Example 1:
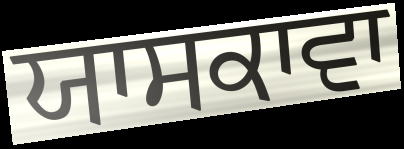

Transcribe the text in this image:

ਯਾਸਕਾਵਾ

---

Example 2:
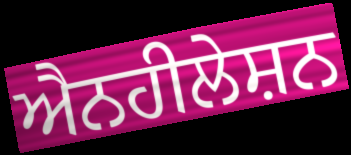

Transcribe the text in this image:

ਐਨਹੀਲੇਸ਼ਨ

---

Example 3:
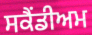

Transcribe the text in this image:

ਸਕੈਂਡੀਅਮ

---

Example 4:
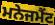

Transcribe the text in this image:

ਮਨੇਜਮੈਂਟ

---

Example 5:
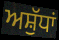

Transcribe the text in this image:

ਅਸ਼ੁੱਧਾਂ